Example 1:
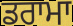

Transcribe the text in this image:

ਡਰਾਮਾ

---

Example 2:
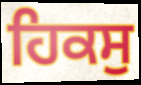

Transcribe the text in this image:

ਹਿਕਸੁ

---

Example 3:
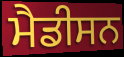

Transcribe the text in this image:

ਮੈਡੀਸਨ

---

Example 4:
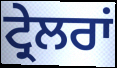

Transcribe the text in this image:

ਟ੍ਰੇਲਰਾਂ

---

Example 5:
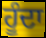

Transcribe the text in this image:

ਹੂੰਦਾ